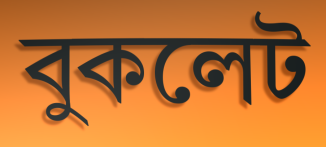
বুকলেট